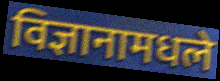
विज्ञानामधले